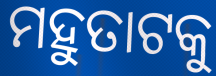
ମହୁତାଟକୁ